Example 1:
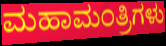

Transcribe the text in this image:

ಮಹಾಮಂತ್ರಿಗಳು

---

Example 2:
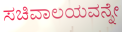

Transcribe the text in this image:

ಸಚಿವಾಲಯವನ್ನೇ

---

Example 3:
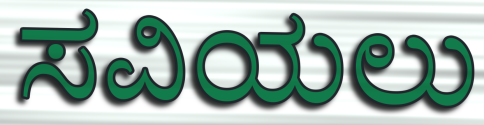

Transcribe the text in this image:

ಸವಿಯಲು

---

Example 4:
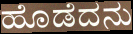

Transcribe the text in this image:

ಹೊಡೆದನು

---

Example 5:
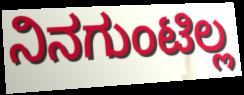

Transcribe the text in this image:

ನಿನಗುಂಟಿಲ್ಲ